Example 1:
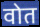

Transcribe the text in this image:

वोत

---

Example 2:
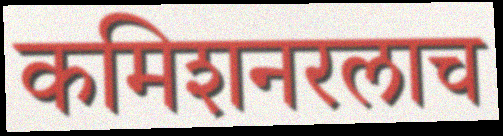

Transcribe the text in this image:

कमिशनरलाच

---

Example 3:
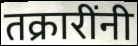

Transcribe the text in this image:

तक्रारींनी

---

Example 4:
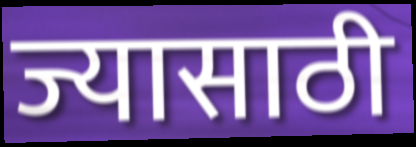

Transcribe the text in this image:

ज्यासाठी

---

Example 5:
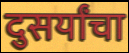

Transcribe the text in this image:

दुसर्यांचा